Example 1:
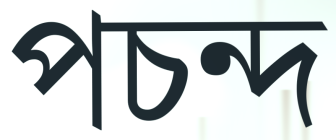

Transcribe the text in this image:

পচন্দ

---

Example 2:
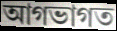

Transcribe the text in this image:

আগভাগত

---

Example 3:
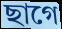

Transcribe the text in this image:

ছাগে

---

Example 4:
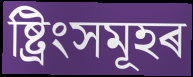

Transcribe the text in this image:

ষ্ট্ৰিংসমূহৰ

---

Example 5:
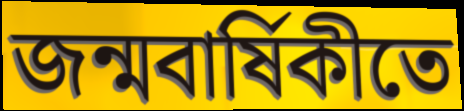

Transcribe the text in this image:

জন্মবাৰ্ষিকীতে